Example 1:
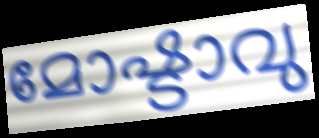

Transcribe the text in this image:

മോഷ്ടാവു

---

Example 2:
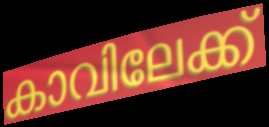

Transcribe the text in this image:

കാവിലേക്ക്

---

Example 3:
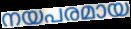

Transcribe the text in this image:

നയപരമായ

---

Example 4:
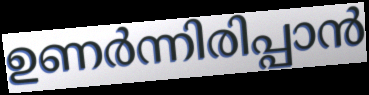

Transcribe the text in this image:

ഉണർന്നിരിപ്പാൻ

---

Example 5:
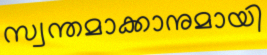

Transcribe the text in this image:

സ്വന്തമാക്കാനുമായി